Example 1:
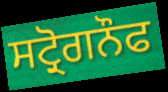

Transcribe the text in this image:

ਸਟ੍ਰੋਗਨੌਫ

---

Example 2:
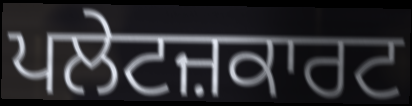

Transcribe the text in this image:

ਪਲੇਟਜ਼ਕਾਰਟ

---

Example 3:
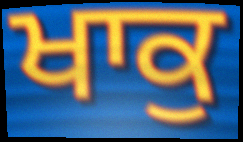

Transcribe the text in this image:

ਖਾਕੁ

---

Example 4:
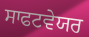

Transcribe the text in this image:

ਸਾਫਟਵੇਯਰ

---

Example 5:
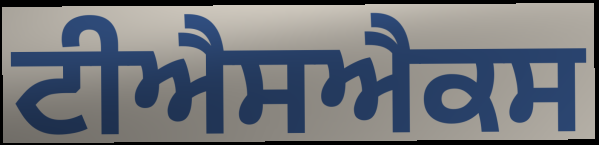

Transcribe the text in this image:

ਟੀਐਸਐਕਸ